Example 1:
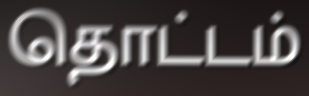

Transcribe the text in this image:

தொட்டம்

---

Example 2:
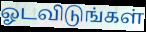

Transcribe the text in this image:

ஓடவிடுங்கள்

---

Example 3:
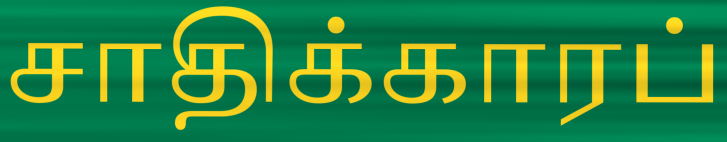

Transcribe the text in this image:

சாதிக்காரப்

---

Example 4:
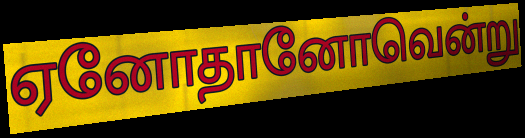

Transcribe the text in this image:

ஏனோதானோவென்று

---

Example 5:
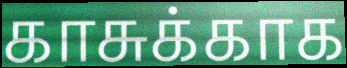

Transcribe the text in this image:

காசுக்காக